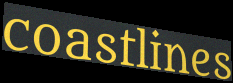
coastlines